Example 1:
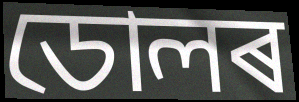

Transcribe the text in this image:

ডোলৰ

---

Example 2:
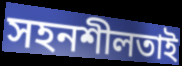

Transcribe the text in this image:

সহনশীলতাই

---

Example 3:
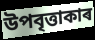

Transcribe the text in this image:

উপবৃত্তাকাৰ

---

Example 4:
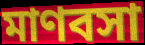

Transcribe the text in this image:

মাণবসা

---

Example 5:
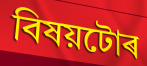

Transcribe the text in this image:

বিষয়টোৰ